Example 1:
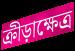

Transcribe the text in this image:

ক্রীড়াক্ষেত্র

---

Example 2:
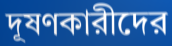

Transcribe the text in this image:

দূষণকারীদের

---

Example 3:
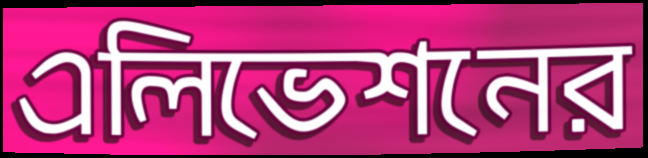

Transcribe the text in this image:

এলিভেশনের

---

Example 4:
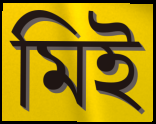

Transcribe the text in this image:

মিই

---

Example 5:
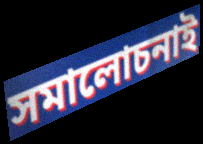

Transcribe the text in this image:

সমালোচনাই